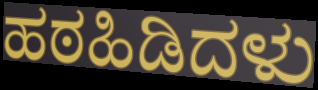
ಹಠಹಿಡಿದಳು